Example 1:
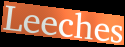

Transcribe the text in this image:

Leeches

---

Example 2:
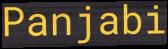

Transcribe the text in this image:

Panjabi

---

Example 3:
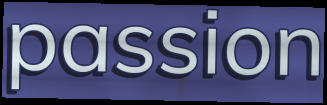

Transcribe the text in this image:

passion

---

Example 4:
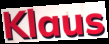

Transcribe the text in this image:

Klaus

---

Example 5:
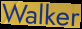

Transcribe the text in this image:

Walker